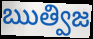
ఋత్విజ